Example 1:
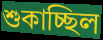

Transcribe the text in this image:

শুকাচ্ছিল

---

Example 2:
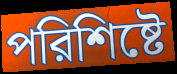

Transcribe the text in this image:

পরিশিষ্টে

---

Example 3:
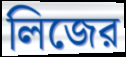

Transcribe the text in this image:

লিজের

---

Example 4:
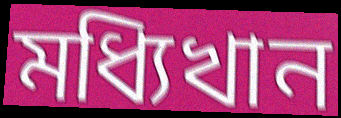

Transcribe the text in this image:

মধ্যিখান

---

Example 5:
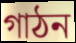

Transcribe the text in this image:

গাঠন